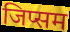
जिप्सम